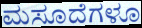
ಮಸೂದೆಗಳೂ